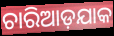
ଚାରିଆଡ଼ଯାକ